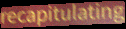
recapitulating